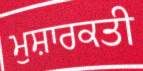
ਮੁਸ਼ਾਰਕਤੀ